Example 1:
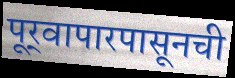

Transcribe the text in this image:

पूर्वापारपासूनची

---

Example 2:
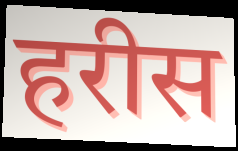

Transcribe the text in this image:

हरीस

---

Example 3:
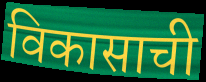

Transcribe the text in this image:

विकासाची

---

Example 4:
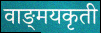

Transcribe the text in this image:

वाङ्‌मयकृती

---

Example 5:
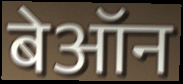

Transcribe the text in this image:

बेऑन